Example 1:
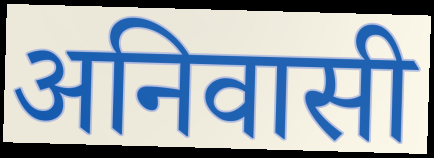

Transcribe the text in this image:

अनिवासी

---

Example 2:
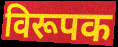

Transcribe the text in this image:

विरूपक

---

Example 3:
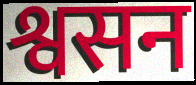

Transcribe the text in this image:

श्वसन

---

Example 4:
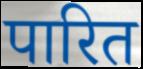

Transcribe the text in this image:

पारित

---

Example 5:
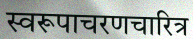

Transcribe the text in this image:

स्वरूपाचरणचारित्र